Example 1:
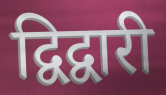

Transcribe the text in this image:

द्विद्वारी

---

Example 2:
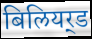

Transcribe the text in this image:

बिलियर्ड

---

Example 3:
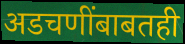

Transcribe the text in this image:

अडचणींबाबतही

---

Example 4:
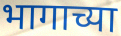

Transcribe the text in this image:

भागाच्या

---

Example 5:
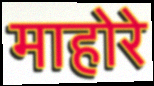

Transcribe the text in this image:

माहोरे